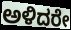
ಅಳಿದರೇ